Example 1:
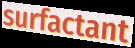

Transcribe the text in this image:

surfactant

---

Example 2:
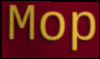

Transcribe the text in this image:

Mop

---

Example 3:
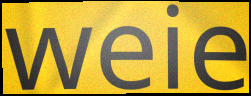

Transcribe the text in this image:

weie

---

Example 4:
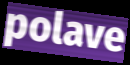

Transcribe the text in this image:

polave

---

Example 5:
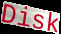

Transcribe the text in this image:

Disk